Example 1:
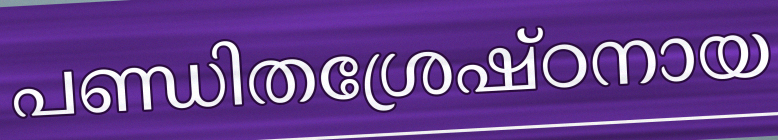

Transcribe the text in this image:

പണ്ഡിതശ്രേഷ്ഠനായ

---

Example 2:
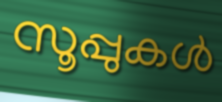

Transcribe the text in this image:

സൂപ്പുകൾ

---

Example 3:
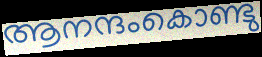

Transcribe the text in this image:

ആനന്ദംകൊണ്ടു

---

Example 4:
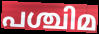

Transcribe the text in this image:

പശ്ചിമ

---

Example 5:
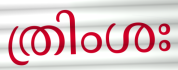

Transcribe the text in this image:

ത്രിംശഃ